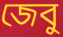
জেবু